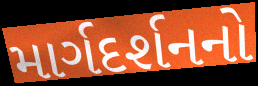
માર્ગદર્શનનો